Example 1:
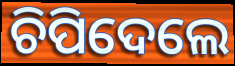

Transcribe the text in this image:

ଚିପିଦେଲେ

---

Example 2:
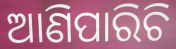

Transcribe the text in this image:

ଆଣିପାରିଚି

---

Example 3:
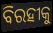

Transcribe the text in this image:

ବିରହୀକୁ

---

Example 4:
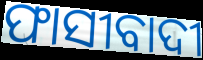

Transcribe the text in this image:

ଫାସୀବାଦୀ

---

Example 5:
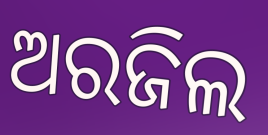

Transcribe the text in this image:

ଅରଜିଲ